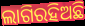
ଲାଗିରହିଅଛି